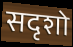
सदृशो